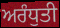
ਅਰੰਧੁਤੀ